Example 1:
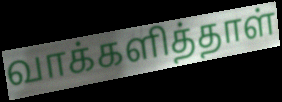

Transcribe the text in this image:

வாக்களித்தாள்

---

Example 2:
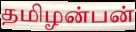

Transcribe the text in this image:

தமிழன்பன்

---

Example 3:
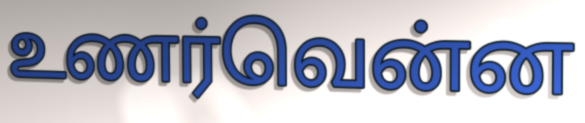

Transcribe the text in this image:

உணர்வென்ன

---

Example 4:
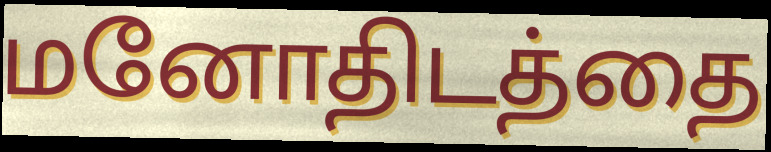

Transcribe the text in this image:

மனோதிடத்தை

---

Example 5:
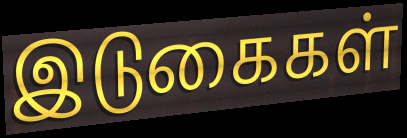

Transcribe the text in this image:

இடுகைகள்